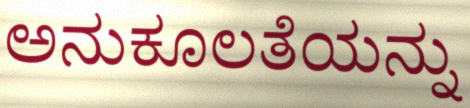
ಅನುಕೂಲತೆಯನ್ನು